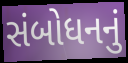
સંબોધનનું